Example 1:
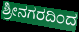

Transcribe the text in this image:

ಶ್ರೀನಗರದಿಂದ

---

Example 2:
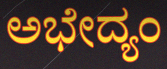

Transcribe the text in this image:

ಅಭೇದ್ಯಂ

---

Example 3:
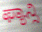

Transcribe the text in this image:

ಫ್ಯಾನ್ಸಿ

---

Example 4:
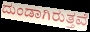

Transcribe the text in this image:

ದುಂಡಾಗಿರುತ್ತವೆ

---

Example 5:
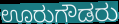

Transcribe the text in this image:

ಊರುಗೌಡರು